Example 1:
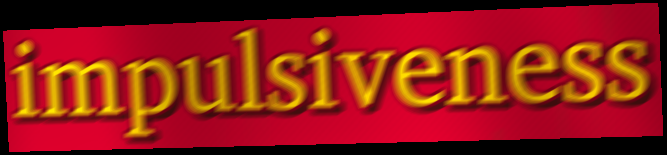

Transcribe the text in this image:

impulsiveness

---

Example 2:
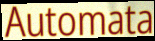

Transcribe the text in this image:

Automata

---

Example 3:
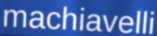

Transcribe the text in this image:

machiavelli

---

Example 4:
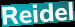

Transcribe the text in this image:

Reidel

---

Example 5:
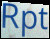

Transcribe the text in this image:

Rpt